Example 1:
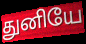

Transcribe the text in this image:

துனியே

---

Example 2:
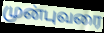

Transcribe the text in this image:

முன்புவரை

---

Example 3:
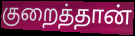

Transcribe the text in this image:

குறைத்தான்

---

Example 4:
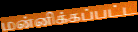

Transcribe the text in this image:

மன்னிக்கப்பட்ட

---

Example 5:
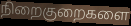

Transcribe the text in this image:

நிறைகுறைகளை